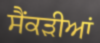
ਸੈਂਕੜੀਆਂ